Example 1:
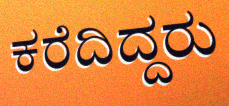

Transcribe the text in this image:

ಕರೆದಿದ್ದರು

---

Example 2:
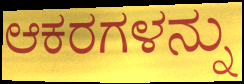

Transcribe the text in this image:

ಆಕರಗಳನ್ನು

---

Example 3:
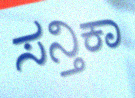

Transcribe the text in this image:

ಸನ್ತಿಕಾ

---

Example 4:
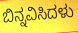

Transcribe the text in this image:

ಬಿನ್ನವಿಸಿದಳು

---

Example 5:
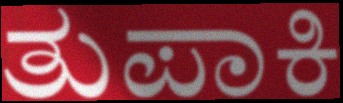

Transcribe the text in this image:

ತುಪಾಕಿ